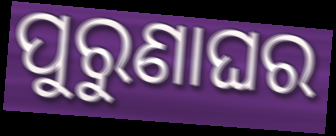
ପୁରୁଣାଘର